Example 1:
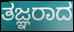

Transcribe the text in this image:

ತಜ್ಞರಾದ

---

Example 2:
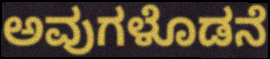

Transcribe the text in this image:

ಅವುಗಳೊಡನೆ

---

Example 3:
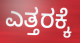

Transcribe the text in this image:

ಎತ್ತರಕ್ಕೆ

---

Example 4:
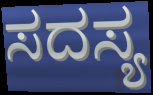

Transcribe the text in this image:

ಸದಸ್ಯ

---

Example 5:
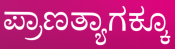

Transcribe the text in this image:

ಪ್ರಾಣತ್ಯಾಗಕ್ಕೂ